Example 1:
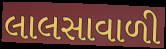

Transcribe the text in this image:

લાલસાવાળી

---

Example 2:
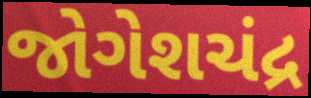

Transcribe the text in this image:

જોગેશચંદ્ર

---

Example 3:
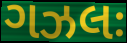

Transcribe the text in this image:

ગઝલઃ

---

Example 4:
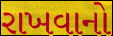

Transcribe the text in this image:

રાખવાનો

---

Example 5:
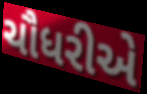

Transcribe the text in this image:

ચૌધરીએ